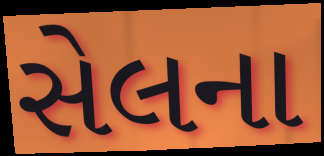
સેલના